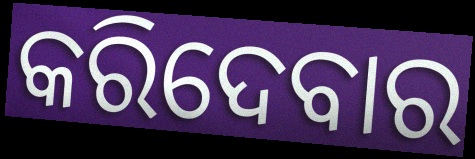
କରିଦେବାର